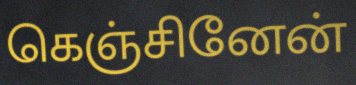
கெஞ்சினேன்